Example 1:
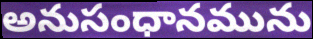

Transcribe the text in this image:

అనుసంధానమును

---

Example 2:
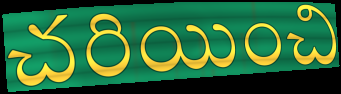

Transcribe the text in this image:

చరియించి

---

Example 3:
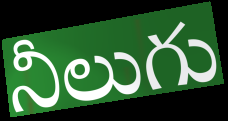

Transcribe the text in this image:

నీలుగు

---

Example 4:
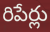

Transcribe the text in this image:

రిపేర్లు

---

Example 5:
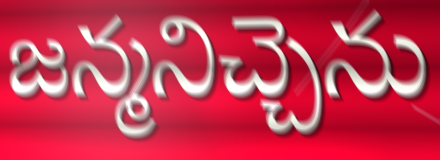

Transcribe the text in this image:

జన్మనిచ్చెను